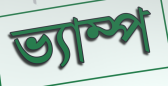
ভ্যাম্প